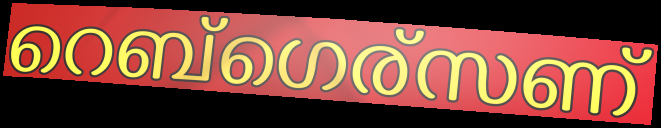
റെബ്ഗെര്സണ്